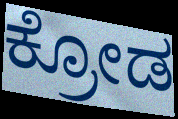
ಕ್ರೋಡ